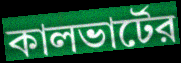
কালভার্টের